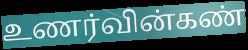
உணர்வின்கண்